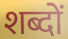
शब्‍दों